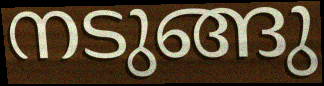
നടുങ്ങു